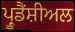
ਪ੍ਰੂਡੈਂਸ਼ੀਅਲ